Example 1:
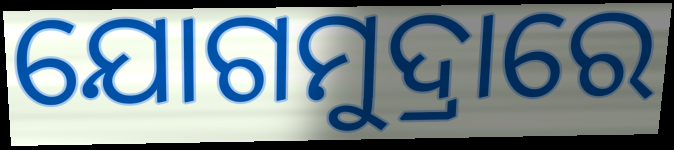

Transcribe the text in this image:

ଯୋଗମୁଦ୍ରାରେ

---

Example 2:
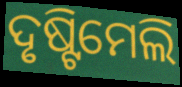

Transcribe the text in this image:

ଦୃଷ୍ଟିମେଲି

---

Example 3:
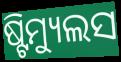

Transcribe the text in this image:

ଷ୍ଟିମ୍ୟୁଲସ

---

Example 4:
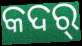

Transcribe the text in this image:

କଦର୍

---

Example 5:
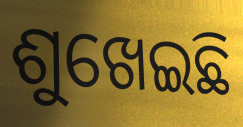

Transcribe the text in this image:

ଶୁଖେଇଛି